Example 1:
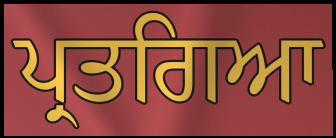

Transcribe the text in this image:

ਪ੍ਰਤਗਿਆ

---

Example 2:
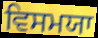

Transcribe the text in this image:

ਵਿਸਮਯਾ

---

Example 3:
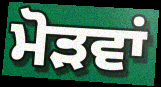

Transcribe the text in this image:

ਮੋੜਵਾਂ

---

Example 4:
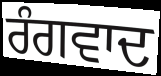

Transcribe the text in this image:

ਰੰਗਵਾਦ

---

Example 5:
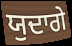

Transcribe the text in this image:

ਯੁਦਾਗੇ